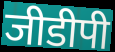
जीडीपी